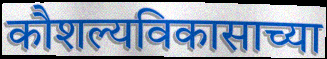
कौशल्यविकासाच्या